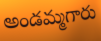
అండమ్మగారు